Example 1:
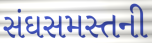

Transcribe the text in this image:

સંઘસમસ્તની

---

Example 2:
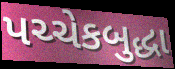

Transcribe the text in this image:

પચ્ચેકબુદ્ધા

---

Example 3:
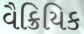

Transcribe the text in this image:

વૈક્રિયિક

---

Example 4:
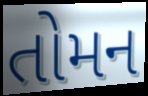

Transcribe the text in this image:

તોમન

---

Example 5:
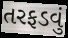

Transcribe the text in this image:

તરફડવું